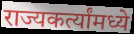
राज्यकर्त्यांमध्ये